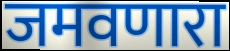
जमवणारा